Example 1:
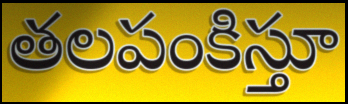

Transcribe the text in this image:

తలపంకిస్తూ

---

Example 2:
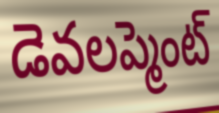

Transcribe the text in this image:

డెవలప్మెంట్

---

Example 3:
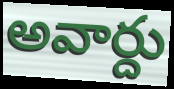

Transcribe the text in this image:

అవార్దు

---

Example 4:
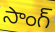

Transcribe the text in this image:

సాంగ్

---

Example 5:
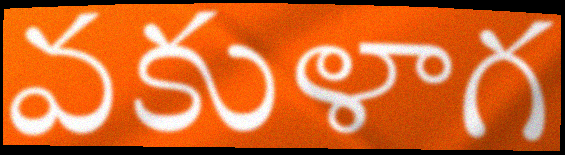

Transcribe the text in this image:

వకుళాగ